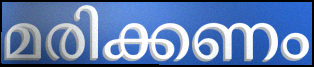
മരിക്കണം